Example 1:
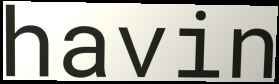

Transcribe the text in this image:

havin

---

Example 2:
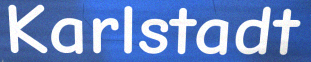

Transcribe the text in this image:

Karlstadt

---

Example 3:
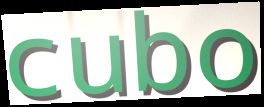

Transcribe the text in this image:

cubo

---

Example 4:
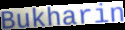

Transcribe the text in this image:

Bukharin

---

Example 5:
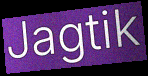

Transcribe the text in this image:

Jagtik